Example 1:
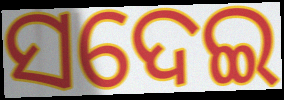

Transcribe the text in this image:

ସଦେଇ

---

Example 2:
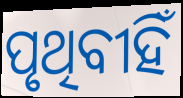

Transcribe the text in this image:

ପୃଥିବୀହିଁ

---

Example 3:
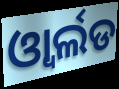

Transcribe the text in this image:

ଓ୍ବାର୍ଲଡ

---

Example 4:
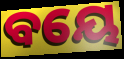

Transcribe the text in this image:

ବୟେ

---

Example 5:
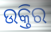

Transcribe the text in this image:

ଉକ୍ତିର